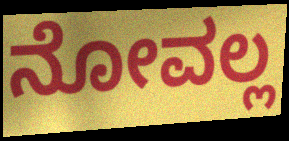
ನೋವಲ್ಲ